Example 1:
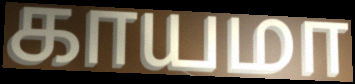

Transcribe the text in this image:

காயமா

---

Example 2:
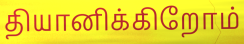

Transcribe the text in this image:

தியானிக்கிறோம்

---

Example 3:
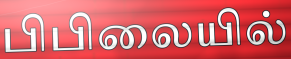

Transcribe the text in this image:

பிபிலையில்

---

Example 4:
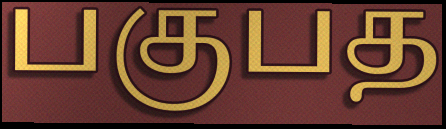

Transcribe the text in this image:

பகுபத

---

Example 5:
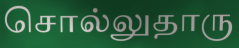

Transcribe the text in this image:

சொல்லுதாரு